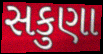
સકુણા